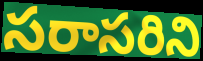
సరాసరిని